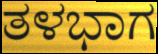
ತಳಭಾಗ